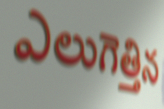
ఎలుగెత్తిన